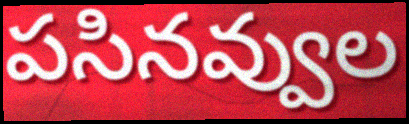
పసినవ్వుల